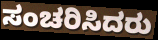
ಸಂಚರಿಸಿದರು